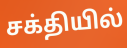
சக்தியில்